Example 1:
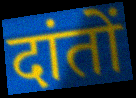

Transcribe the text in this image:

दांतों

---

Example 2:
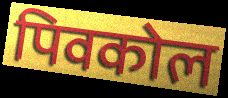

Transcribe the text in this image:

पिवकोल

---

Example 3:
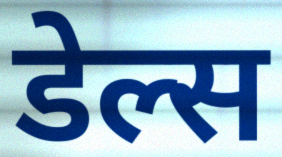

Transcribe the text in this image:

डेल्स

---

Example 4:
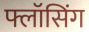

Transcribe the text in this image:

फ्लॉसिंग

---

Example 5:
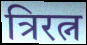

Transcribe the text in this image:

त्रिरत्न